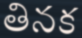
తినక